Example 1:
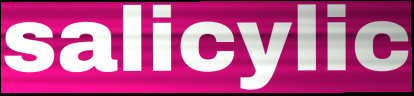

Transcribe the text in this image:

salicylic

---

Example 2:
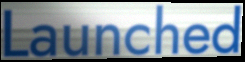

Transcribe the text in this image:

Launched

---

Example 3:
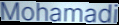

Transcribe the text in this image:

Mohamadi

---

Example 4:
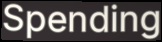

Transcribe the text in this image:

Spending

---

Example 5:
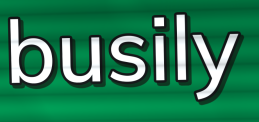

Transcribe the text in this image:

busily